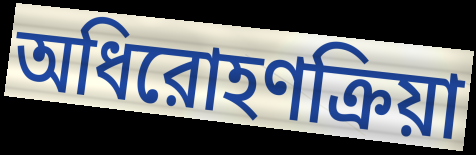
অধিরোহণক্রিয়া